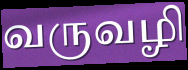
வருவழி